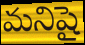
మనిషై